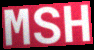
MSH